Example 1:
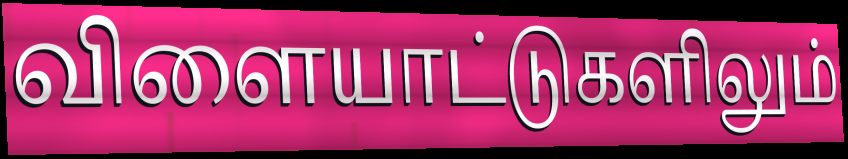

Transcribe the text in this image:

விளையாட்டுகளிலும்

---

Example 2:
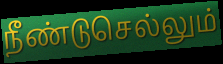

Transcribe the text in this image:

நீண்டுசெல்லும்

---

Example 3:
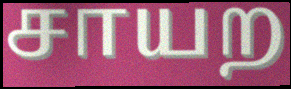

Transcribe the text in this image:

சாயற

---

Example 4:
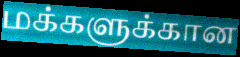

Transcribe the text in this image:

மக்களுக்கான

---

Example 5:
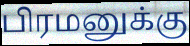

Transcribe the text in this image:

பிரமனுக்கு